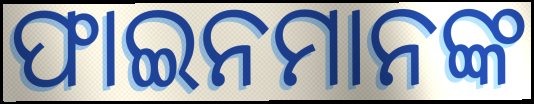
ଫାଇନମାନଙ୍କ